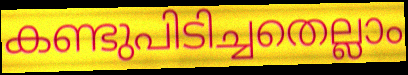
കണ്ടുപിടിച്ചതെല്ലാം